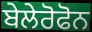
ਬੇਲੇਰੋਫੋਨ